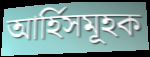
আৰ্হিসমূহক